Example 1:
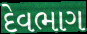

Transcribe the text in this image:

દેવભાગ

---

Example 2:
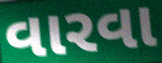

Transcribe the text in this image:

વારવા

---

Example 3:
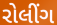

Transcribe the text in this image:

રોલીંગ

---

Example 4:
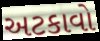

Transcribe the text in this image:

અટકાવો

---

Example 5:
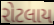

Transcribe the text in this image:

રોટલાય